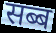
सब्ब